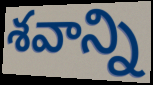
శవాన్ని